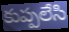
కుప్పలేసి